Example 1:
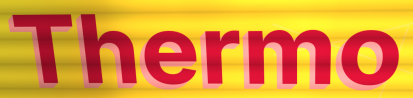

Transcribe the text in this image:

Thermo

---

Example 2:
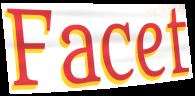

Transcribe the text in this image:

Facet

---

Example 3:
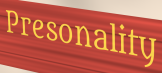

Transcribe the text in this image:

Presonality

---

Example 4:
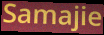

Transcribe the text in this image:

Samajie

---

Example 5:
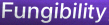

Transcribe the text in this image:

Fungibility